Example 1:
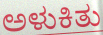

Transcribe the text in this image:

ಅಳುಕಿತು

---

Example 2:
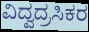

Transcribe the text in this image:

ವಿದ್ವದ್ರಸಿಕರ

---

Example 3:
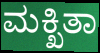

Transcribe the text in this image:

ಮಕ್ಖಿತಾ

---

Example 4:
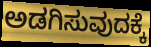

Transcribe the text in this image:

ಅಡಗಿಸುವುದಕ್ಕೆ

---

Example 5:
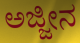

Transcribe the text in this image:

ಅಜ್ಜೀನ